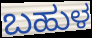
ಬಹುಳ